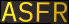
ASFR